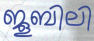
ജൂബിലി